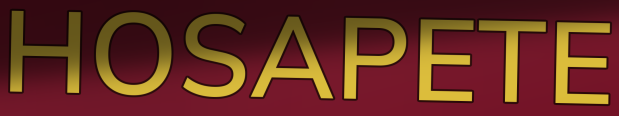
HOSAPETE